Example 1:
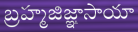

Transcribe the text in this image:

బ్రహ్మజిజ్ఞాసాయా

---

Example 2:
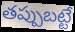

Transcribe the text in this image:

తప్పుబట్టే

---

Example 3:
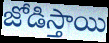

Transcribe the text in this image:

జోడిస్తాయి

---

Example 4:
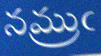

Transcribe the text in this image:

నమ్రుఁ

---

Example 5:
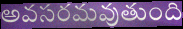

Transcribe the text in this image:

అవసరమవుతుంది